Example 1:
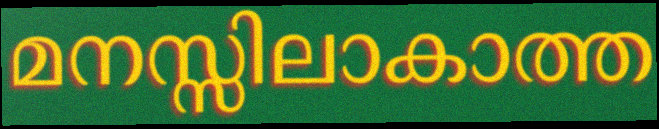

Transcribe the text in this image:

മനസ്സിലാകാത്ത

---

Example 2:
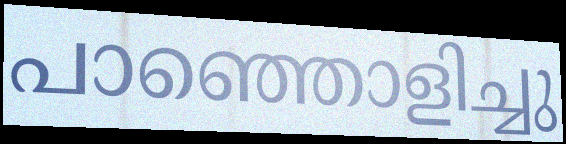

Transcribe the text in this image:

പാഞ്ഞൊളിച്ചു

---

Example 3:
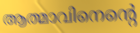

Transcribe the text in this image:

ആത്മാവിനെന്റെ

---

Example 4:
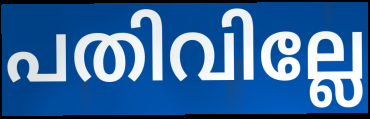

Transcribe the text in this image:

പതിവില്ലേ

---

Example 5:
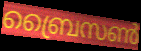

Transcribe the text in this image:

ബ്രൈസൺ